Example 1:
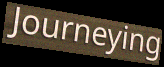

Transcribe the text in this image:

Journeying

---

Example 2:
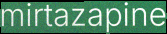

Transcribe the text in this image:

mirtazapine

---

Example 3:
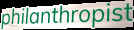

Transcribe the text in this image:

philanthropist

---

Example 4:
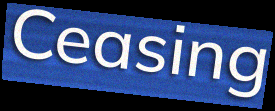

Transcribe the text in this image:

Ceasing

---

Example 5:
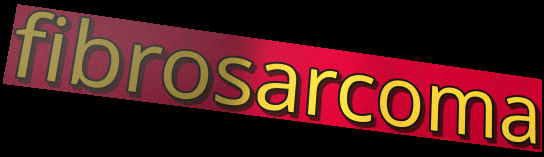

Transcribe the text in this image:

fibrosarcoma